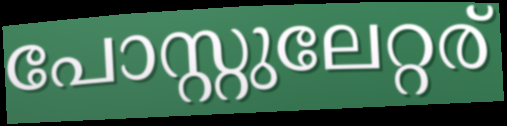
പോസ്റ്റുലേറ്റര്